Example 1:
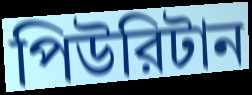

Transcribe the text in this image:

পিউরিটান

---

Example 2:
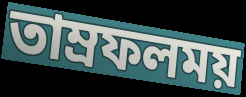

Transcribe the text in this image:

তাম্রফলময়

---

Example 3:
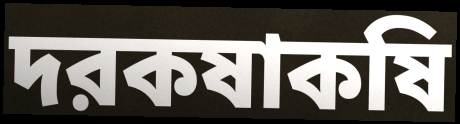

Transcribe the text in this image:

দরকষাকষি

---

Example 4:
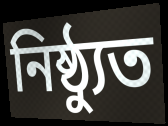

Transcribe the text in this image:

নিষ্ঠ্যুত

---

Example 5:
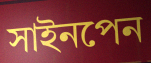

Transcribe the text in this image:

সাইনপেন